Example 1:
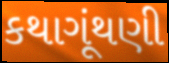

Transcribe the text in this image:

કથાગૂંથણી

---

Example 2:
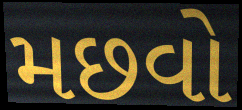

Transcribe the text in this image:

મછવો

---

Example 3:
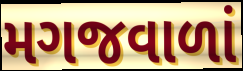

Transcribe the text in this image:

મગજવાળાં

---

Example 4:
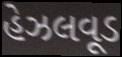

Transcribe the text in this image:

હેઝલવૂડ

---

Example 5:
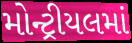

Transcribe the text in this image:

મોન્ટ્રીયલમાં